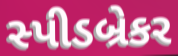
સ્પીડબ્રેકર